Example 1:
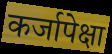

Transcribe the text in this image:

कर्जापेक्षा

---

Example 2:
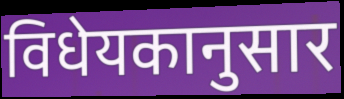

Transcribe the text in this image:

विधेयकानुसार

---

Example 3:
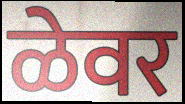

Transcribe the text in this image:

ळेवर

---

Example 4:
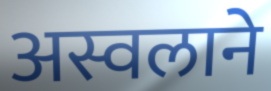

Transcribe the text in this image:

अस्वलाने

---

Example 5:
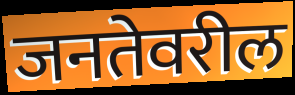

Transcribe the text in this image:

जनतेवरील